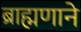
ब्राह्मणाने